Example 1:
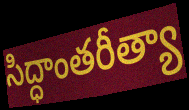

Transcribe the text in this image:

సిద్ధాంతరీత్యా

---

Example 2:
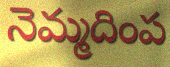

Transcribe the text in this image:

నెమ్మదింప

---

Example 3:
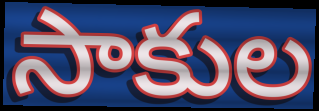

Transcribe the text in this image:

సాకుల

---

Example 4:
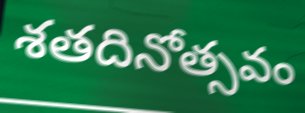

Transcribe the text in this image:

శతదినోత్సవం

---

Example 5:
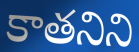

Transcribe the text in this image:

కాతనిని